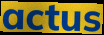
actus